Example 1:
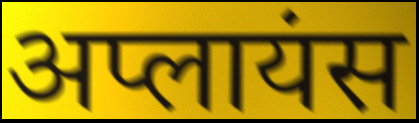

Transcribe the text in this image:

अप्लायंस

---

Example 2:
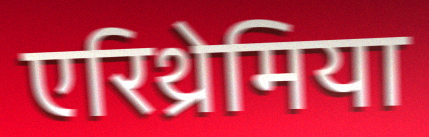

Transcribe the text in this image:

एरिथ्रेमिया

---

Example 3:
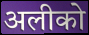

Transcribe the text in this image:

अलीको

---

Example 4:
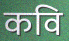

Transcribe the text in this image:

कवि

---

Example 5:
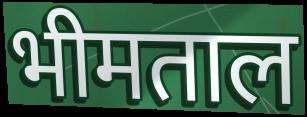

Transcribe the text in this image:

भीमताल